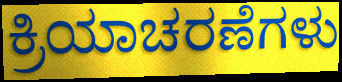
ಕ್ರಿಯಾಚರಣೆಗಳು